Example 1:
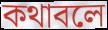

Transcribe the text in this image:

কথাবলে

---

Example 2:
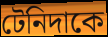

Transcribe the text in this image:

টেনিদাকে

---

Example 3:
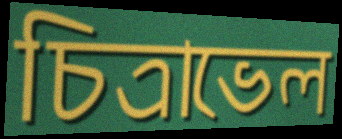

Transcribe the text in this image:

চিত্রাভেল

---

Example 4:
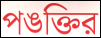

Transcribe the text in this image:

পঙক্তির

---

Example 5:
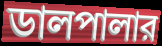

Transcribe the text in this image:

ডালপালার